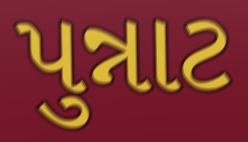
પુન્નાટ